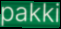
pakki